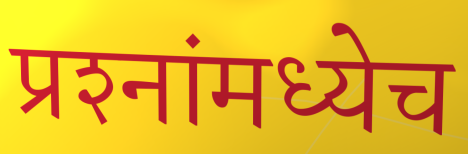
प्रश्नांमध्येच